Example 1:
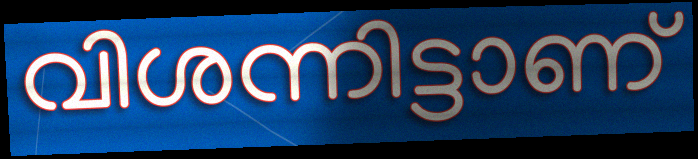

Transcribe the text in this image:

വിശന്നിട്ടാണ്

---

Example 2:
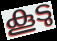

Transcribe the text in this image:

കൂടു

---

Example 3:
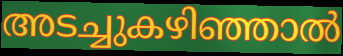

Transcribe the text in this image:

അടച്ചുകഴിഞ്ഞാൽ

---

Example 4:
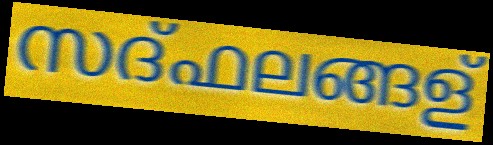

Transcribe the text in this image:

സദ്ഫലങ്ങള്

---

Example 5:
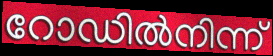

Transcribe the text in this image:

റോഡിൽനിന്ന്